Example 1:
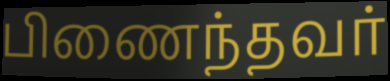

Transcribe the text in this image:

பிணைந்தவர்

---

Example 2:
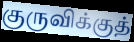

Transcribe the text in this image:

குருவிக்குத்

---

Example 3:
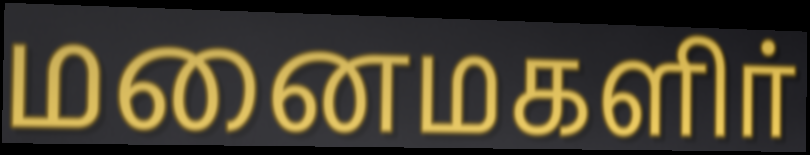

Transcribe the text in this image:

மனைமகளிர்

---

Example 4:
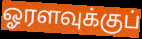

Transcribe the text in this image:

ஓரளவுக்குப்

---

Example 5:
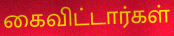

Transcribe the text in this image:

கைவிட்டார்கள்